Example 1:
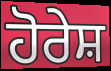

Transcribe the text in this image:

ਹੋਰੇਸ਼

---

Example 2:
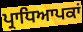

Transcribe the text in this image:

ਪ੍ਰਾਧਿਆਪਕਾਂ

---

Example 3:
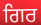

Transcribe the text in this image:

ਗਿਰ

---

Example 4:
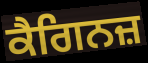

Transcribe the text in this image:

ਕੈਗਿਨਜ਼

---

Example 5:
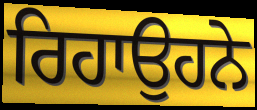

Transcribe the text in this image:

ਰਿਹਾਉਹਨੇ